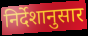
निर्देशानुसार